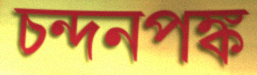
চন্দনপঙ্ক